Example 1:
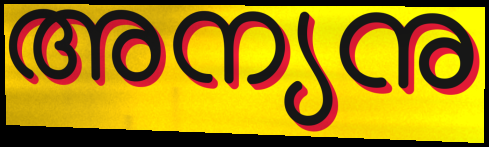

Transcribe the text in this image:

അന്യനു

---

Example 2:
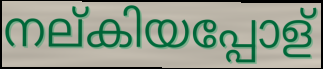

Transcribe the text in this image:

നല്കിയപ്പോള്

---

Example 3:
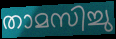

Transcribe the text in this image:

താമസിച്ചു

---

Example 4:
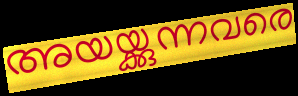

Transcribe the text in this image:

അയയ്ക്കുന്നവരെ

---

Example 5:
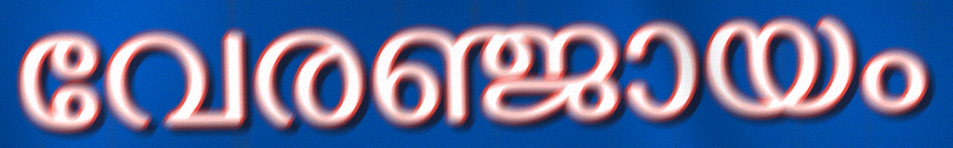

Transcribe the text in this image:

വേരഞ്ജായം